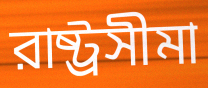
রাষ্ট্রসীমা